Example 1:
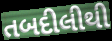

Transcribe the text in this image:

તબદીલીથી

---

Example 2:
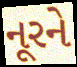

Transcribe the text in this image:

નૂરને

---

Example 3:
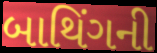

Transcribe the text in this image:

બાથિંગની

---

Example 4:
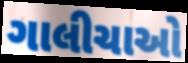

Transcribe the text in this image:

ગાલીચાઓ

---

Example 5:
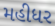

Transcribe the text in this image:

મહીધર